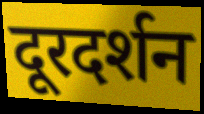
दूरदर्शन